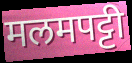
मलमपट्टी